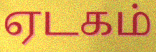
ஏடகம்